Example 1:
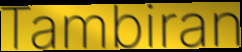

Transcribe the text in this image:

Tambiran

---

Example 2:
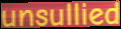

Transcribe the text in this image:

unsullied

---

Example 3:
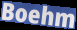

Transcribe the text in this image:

Boehm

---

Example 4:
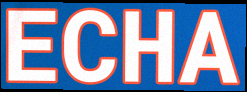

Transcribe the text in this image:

ECHA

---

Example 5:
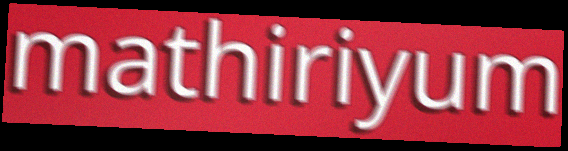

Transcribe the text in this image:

mathiriyum